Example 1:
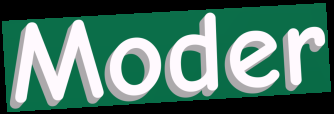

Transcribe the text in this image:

Moder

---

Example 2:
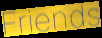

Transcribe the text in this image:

Friends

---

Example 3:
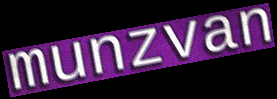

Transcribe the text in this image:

munzvan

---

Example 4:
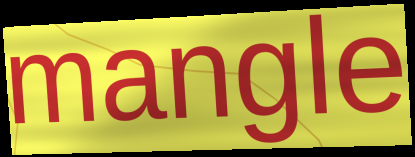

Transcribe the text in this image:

mangle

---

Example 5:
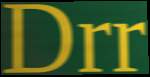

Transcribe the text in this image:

Drr